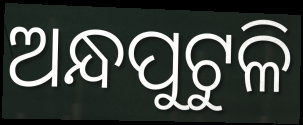
ଅନ୍ଧପୁଟୁଳି